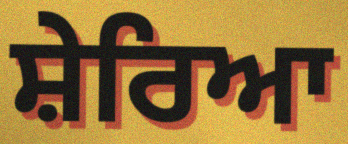
ਸ਼ੇਰਿਆ